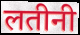
लतीनी